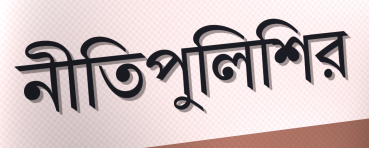
নীতিপুলিশির